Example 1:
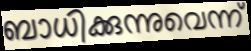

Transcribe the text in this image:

ബാധിക്കുന്നുവെന്ന്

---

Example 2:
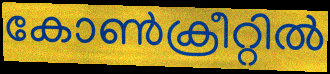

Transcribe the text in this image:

കോൺക്രീറ്റിൽ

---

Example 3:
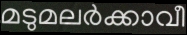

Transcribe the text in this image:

മടുമലർക്കാവീ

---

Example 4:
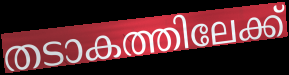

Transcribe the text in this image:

തടാകത്തിലേക്ക്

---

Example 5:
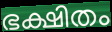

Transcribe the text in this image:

ഭക്ഷിതം